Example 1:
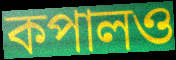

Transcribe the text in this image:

কপালও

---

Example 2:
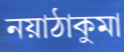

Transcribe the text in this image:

নয়াঠাকুমা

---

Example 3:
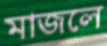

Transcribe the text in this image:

মাজলে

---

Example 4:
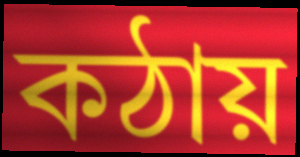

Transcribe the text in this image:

কঠায়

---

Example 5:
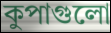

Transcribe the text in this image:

কুপাগুলো